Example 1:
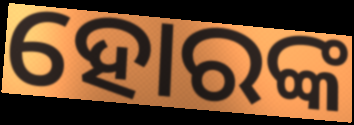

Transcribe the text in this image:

ହୋରଙ୍କ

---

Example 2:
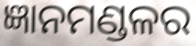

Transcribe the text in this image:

ଜ୍ଞାନମଣ୍ଡଳର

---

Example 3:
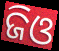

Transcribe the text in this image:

ଜିଓ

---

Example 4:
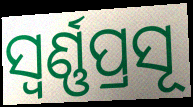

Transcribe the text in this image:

ସ୍ଵର୍ଣ୍ଣପ୍ରସୂ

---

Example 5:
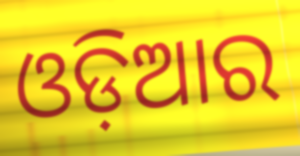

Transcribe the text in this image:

ଓଡ଼ିଆର